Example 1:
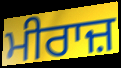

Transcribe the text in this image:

ਮੀਰਾਜ਼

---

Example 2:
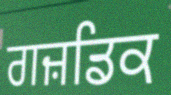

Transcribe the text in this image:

ਗਜ਼ਡਿਕ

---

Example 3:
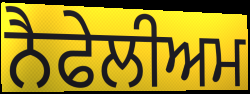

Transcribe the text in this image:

ਨੈਫੇਲੀਅਮ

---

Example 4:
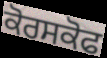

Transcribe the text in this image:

ਕੋਰਸਕੋਫ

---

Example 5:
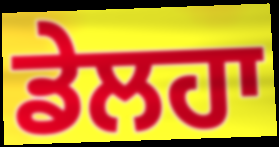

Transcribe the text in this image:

ਡੇਲਹਾ